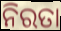
ନିରତା